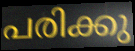
പരിക്കു